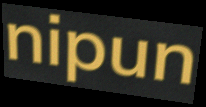
nipun